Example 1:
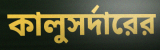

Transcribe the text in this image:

কালুসর্দারের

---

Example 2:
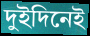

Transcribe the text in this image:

দুইদিনেই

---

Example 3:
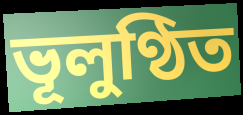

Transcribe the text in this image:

ভূলুণ্ঠিত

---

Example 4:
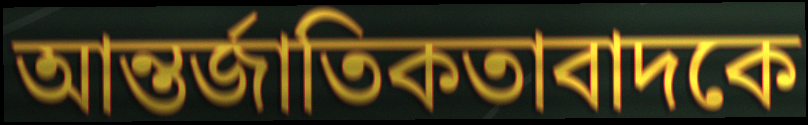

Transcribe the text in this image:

আন্তর্জাতিকতাবাদকে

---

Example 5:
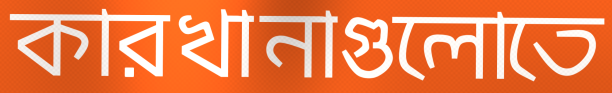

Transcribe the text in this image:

কারখানাগুলোতে